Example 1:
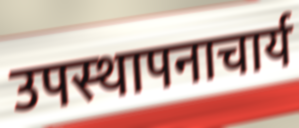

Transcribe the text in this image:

उपस्थापनाचार्य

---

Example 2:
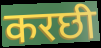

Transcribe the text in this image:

करछी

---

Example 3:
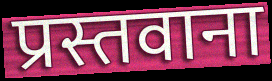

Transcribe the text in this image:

प्रस्तवाना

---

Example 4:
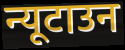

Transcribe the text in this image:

न्यूटाउन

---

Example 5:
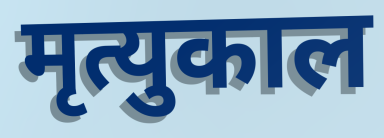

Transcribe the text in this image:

मृत्युकाल